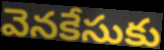
వెనకేసుకు